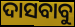
ଦାସବାବୁ